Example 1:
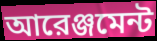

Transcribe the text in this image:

আরেঞ্জমেন্ট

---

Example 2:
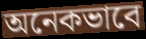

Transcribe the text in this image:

অনেকভাবে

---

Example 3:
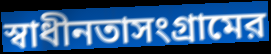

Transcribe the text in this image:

স্বাধীনতাসংগ্রামের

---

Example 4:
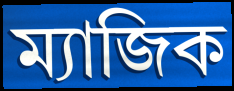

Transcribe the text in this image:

ম্যাজিক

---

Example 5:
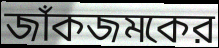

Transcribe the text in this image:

জাঁকজমকের